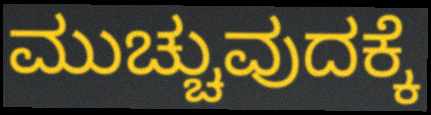
ಮುಚ್ಚುವುದಕ್ಕೆ